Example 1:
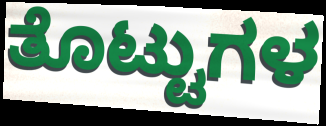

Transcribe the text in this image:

ತೊಟ್ಟುಗಳ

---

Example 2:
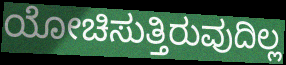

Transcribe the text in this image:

ಯೋಚಿಸುತ್ತಿರುವುದಿಲ್ಲ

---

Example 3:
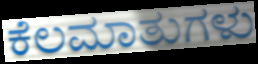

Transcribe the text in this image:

ಕೆಲಮಾತುಗಳು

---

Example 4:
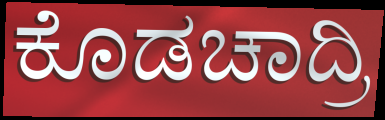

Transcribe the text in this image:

ಕೊಡಚಾದ್ರಿ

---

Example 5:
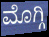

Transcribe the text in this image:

ಮೊಗ್ಗಿ